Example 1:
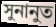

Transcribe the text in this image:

সুনানুত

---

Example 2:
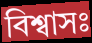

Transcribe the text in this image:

বিশ্বাসঃ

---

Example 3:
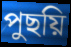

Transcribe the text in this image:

পুছয়ি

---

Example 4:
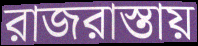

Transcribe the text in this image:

রাজরাস্তায়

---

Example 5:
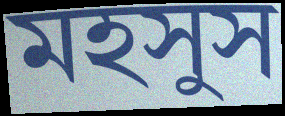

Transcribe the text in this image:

মহসুস